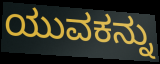
ಯುವಕನ್ನು